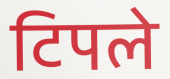
टिपले